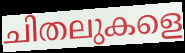
ചിതലുകളെ